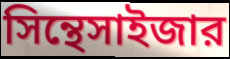
সিন্থেসাইজার